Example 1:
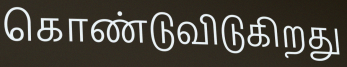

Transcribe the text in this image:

கொண்டுவிடுகிறது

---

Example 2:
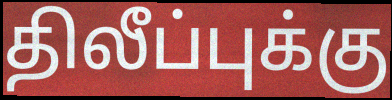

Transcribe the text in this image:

திலீப்புக்கு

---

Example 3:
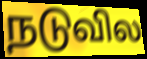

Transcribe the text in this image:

நடுவில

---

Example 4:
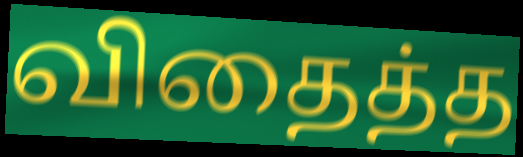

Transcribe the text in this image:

விதைத்த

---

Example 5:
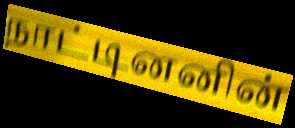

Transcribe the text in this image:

நாட்டினனின்